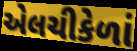
એલચીકેળાં